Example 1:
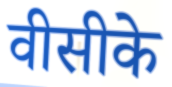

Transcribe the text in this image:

वीसीके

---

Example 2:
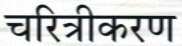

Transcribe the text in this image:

चरित्रीकरण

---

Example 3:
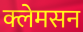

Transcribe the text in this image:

क्लेमसन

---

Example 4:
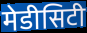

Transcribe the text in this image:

मेडीसिटी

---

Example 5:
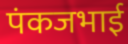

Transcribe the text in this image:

पंकजभाई